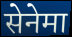
सेनेमा